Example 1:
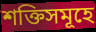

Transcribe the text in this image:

শক্তিসমূহে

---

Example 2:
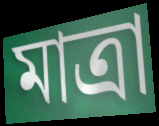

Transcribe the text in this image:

মাত্ৰা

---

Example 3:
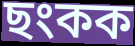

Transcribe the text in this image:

ছংকক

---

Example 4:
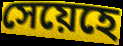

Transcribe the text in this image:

সেয়েহে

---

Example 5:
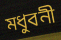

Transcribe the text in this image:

মধুবনী